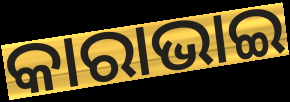
କାରାଭାଇ